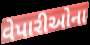
વેપારીઓના